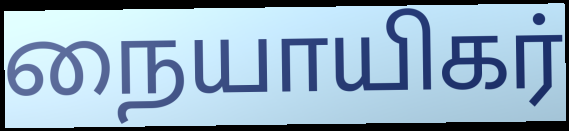
நையாயிகர்